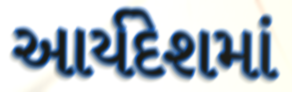
આર્યદેશમાં